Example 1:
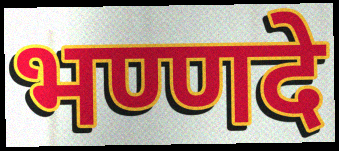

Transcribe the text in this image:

भण्णदे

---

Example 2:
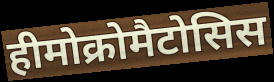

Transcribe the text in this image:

हीमोक्रोमैटोसिस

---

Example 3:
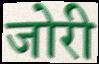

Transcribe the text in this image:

जोरी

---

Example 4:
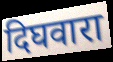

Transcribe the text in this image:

दिघवारा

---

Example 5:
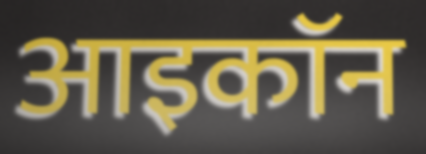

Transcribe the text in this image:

आइकॉन